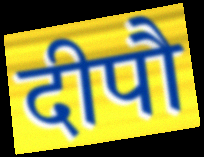
दीपौ